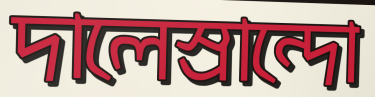
দালেস্রান্দো